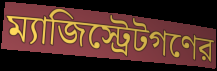
ম্যাজিস্ট্রেটগণের